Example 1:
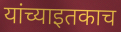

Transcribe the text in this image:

यांच्याइतकाच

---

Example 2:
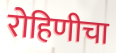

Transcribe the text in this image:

रोहिणीचा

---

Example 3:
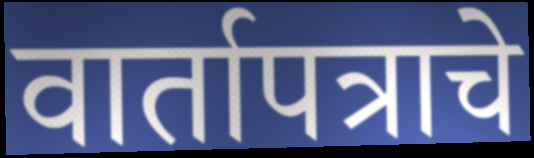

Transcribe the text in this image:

वार्तापत्राचे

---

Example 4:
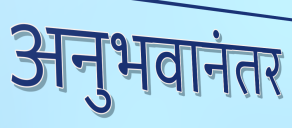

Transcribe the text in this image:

अनुभवानंतर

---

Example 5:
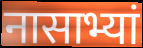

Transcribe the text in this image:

नासाभ्यां